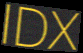
IDX